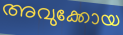
അവുക്കോയ